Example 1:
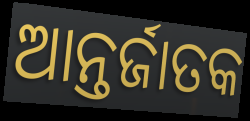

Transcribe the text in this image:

ଆନ୍ତର୍ଜାତକ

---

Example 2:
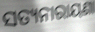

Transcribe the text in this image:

ସତ୍ୟନାରାୟଣା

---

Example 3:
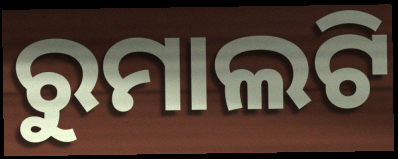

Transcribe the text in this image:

ରୁମାଲଟି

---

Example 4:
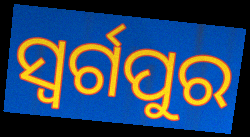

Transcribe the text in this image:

ସ୍ଵର୍ଗପୁର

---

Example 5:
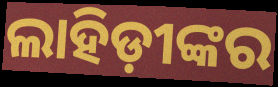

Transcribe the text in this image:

ଲାହିଡ଼ୀଙ୍କର